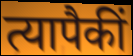
त्यापैकीं